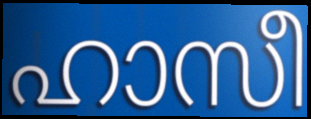
ഹാസീ